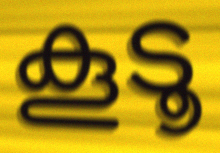
കൂടൂ